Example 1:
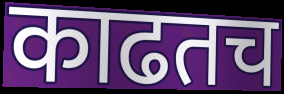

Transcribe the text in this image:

काढतच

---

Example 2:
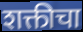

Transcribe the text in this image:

शक्तीचा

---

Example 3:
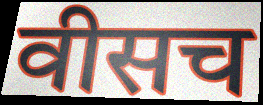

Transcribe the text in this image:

वीसच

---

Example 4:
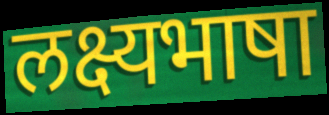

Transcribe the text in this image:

लक्ष्यभाषा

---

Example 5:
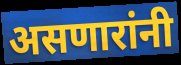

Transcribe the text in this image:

असणारांनी